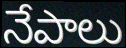
నేపాలు